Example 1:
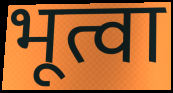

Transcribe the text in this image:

भूत्वा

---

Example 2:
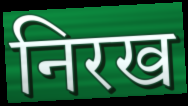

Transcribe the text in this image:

निरख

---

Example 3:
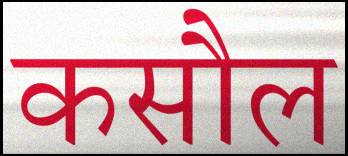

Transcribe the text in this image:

कसौल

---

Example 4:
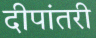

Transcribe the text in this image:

दीपांतरी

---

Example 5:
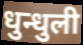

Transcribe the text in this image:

धुन्धुली